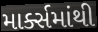
માર્ક્સમાંથી